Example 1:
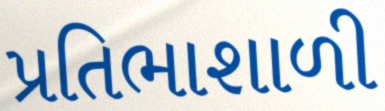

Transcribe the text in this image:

પ્રતિભાશાળી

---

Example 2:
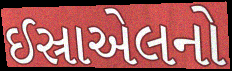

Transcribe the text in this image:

ઈસ્રાએલનો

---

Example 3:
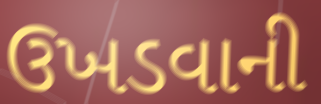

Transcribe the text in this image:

ઉખડવાની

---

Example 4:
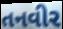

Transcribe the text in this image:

તનવીર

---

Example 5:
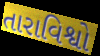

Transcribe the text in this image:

તારાવિશ્વો